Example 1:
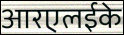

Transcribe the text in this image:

आरएलईके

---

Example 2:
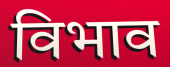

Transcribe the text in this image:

विभाव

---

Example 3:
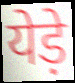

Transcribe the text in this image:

येड़े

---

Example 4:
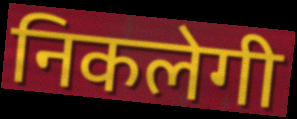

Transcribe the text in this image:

निकलेगी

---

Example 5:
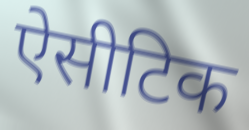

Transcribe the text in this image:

ऐसीटिक